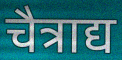
चैत्राद्य